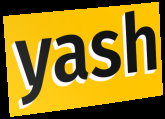
yash